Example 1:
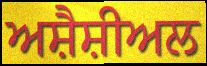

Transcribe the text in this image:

ਅਸ਼ੈਸ਼ੀਅਲ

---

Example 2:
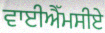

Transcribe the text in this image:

ਵਾਈਐੱਮਸੀਏ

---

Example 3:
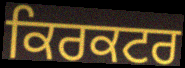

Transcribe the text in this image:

ਕਿਰਕਟਰ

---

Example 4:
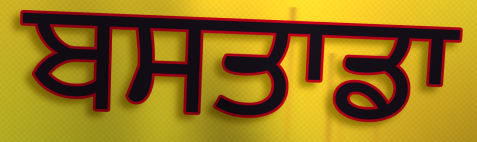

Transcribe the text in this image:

ਬਸਤਾਡਾ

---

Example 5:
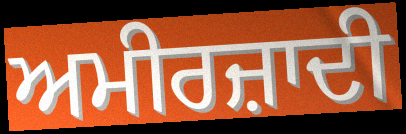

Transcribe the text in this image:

ਅਮੀਰਜ਼ਾਦੀ